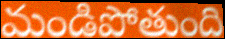
మండిపోతుంది